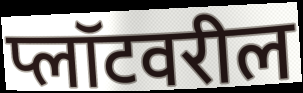
प्लॉटवरील